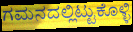
ಗಮನದಲ್ಲಿಟ್ಟುಕೊಳ್ಳಿ